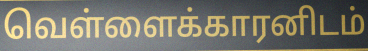
வெள்ளைக்காரனிடம்